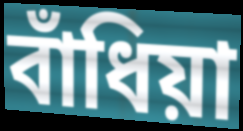
বাঁধিয়া